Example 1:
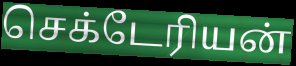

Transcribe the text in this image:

செக்டேரியன்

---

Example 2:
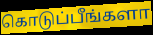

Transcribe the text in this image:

கொடுப்பீங்களா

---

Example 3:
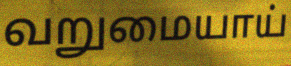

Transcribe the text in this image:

வறுமையாய்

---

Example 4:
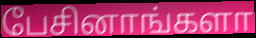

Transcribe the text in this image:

பேசினாங்களா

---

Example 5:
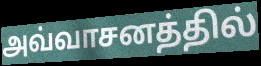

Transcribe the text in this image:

அவ்வாசனத்தில்